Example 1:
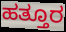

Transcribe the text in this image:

ಹತ್ತೂರ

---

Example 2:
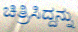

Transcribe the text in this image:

ಚಿತ್ರಿಸಿದ್ದನ್ನು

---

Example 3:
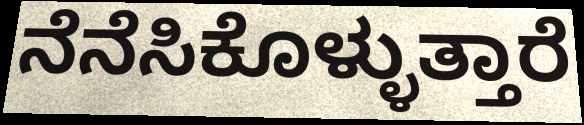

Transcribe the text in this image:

ನೆನೆಸಿಕೊಳ್ಳುತ್ತಾರೆ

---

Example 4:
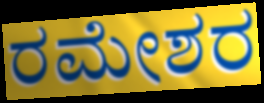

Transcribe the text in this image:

ರಮೇಶರ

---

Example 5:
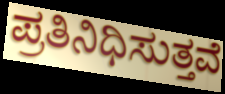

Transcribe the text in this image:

ಪ್ರತಿನಿಧಿಸುತ್ತವೆ